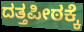
ದತ್ತಪೀಠಕ್ಕೆ